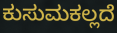
ಕುಸುಮಕಲ್ಲದೆ